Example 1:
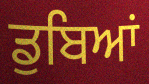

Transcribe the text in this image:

ਡੁਬਿਆਂ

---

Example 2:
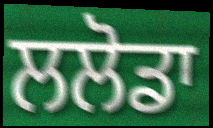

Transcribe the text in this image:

ਲਲੋਡਾ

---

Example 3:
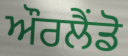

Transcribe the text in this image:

ਔਰਲੈਂਡੋ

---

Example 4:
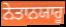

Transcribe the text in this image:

ਨੇਤਾਨਯਾਹੂ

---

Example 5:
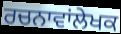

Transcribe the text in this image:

ਰਚਨਾਵਾਂਲੇਖਕ